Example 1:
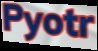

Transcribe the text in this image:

Pyotr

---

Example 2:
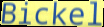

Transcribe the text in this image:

Bickel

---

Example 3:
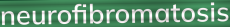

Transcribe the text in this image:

neurofibromatosis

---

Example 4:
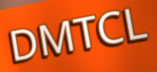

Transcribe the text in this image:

DMTCL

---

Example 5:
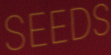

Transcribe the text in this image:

SEEDS